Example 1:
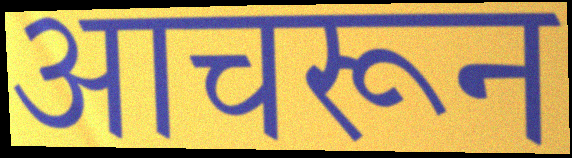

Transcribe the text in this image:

आचरून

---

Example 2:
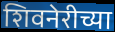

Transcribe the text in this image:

शिवनेरीच्या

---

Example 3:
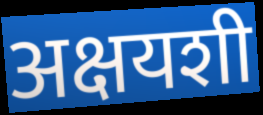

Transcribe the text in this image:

अक्षयशी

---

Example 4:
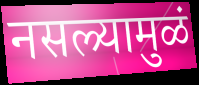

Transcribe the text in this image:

नसल्यामुळं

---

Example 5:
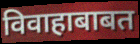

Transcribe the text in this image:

विवाहाबाबत